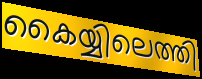
കൈയ്യിലെത്തി